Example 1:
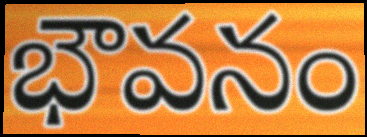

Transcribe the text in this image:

భౌవనం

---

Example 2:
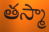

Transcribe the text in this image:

తస్మా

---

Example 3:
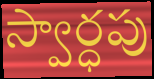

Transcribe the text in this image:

స్వార్ధపు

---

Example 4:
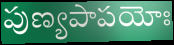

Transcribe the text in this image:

పుణ్యపాపయోః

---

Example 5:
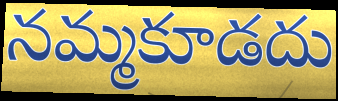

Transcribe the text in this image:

నమ్మకూడదు